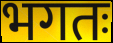
भगतः